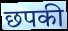
छपकी